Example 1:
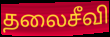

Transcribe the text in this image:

தலைசீவி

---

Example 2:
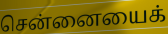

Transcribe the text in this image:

சென்னையைக்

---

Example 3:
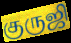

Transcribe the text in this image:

குருஜி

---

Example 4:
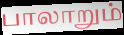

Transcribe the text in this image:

பாலாறும்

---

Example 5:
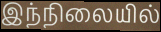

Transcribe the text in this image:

இந்நிலையில்